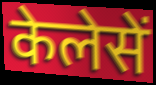
केलेसें